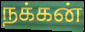
நக்கன்